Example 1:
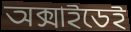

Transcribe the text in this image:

অক্সাইডেই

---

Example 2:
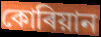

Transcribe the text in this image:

কোৰিয়ান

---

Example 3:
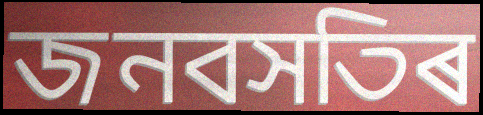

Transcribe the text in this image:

জনবসতিৰ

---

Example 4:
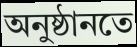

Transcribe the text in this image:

অনুষ্ঠানতে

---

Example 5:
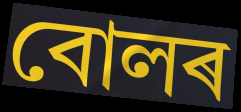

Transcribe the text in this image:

বোলৰ